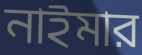
নাইমার